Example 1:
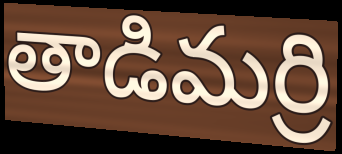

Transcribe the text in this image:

తాడిమర్రి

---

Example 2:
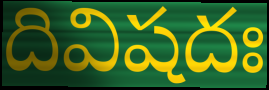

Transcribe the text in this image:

దివిషదః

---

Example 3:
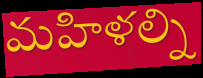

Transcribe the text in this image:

మహిళల్ని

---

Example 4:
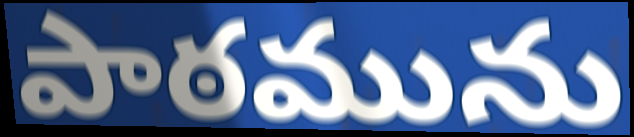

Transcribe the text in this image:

పాఠమును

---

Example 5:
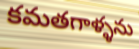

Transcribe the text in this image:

కమతగాళ్ళను